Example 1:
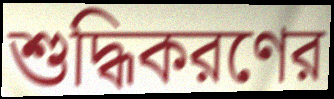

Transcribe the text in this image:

শুদ্ধিকরণের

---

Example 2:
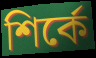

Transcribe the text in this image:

শির্কে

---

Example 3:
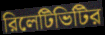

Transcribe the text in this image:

রিলেটিভিটির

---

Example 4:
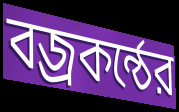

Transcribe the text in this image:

বজ্রকন্ঠের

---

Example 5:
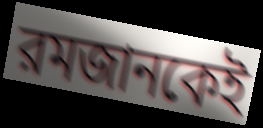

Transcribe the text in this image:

রমজানকেই